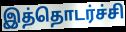
இத்தொடர்ச்சி